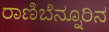
ರಾಣಿಬೆನ್ನೂರಿನ